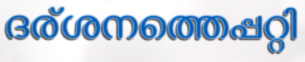
ദര്ശനത്തെപ്പറ്റി